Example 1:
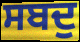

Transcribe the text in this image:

ਸਬਦੁ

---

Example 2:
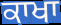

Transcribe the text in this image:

ਕਾਖਾ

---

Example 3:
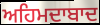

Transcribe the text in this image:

ਅਹਿਮਦਾਬਾਦ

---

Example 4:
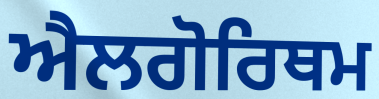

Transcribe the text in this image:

ਐਲਗੋਰਿਥਮ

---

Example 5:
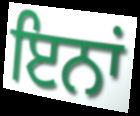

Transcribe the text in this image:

ਇਨਾਂ